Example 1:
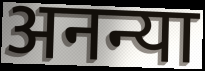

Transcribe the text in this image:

अनन्या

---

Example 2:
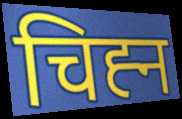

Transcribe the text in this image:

चिह्‍न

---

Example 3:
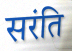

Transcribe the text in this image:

सरंति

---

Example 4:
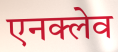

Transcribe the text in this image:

एनक्‍लेव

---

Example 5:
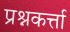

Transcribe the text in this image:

प्रश्नकर्त्ता